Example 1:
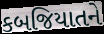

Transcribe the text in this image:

કબજિયાતને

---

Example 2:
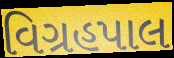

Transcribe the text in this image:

વિગ્રહપાલ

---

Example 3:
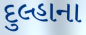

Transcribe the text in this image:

દુલ્હાના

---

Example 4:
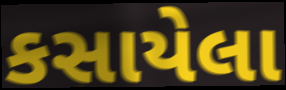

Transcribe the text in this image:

કસાયેલા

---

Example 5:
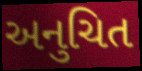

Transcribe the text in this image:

અનુચિત